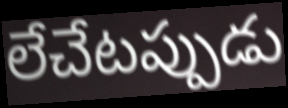
లేచేటప్పుడు